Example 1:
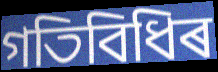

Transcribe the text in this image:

গতিবিধিৰ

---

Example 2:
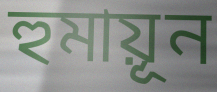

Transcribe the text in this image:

হুমায়ূন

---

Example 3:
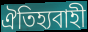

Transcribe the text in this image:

ঐতিহ্যবাহী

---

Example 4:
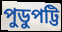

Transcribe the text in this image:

পুডুপট্টি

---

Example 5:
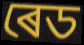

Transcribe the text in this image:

ৰেড